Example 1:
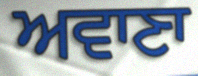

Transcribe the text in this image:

ਅਵਾਣਾ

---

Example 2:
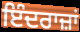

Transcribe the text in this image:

ਇੰਦਰਾਜ਼ਾਂ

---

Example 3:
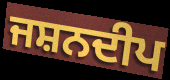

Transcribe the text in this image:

ਜਸ਼ਨਦੀਪ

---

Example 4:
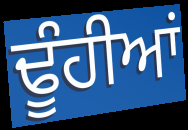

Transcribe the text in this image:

ਢੂੰਹੀਆਂ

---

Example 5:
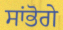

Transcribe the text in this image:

ਸਾਂਭੋਗੇ